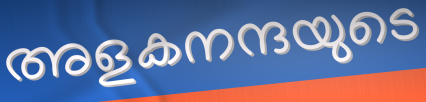
അളകനന്ദയുടെ